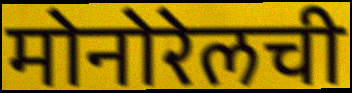
मोनोरेलची